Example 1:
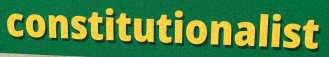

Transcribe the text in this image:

constitutionalist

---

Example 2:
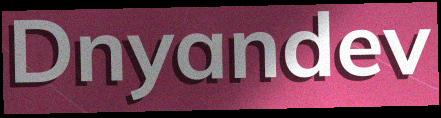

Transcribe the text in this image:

Dnyandev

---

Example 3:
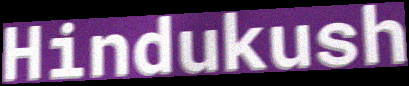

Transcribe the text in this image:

Hindukush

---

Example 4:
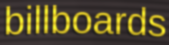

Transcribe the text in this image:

billboards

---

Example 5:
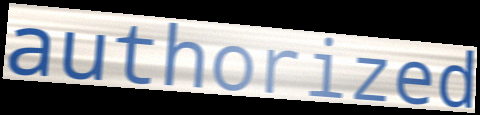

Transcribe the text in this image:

authorized